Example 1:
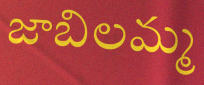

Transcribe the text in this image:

జాబిలమ్మ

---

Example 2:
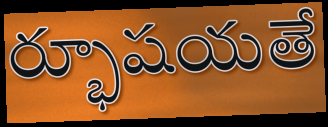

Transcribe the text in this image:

ర్భూషయతే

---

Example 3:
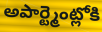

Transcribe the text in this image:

అపార్ట్మెంట్లోకి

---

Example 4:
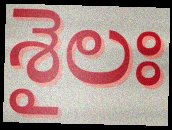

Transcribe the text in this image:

శైలః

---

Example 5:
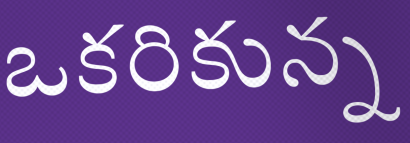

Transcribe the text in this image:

ఒకరికున్న